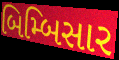
બિમ્બિસાર